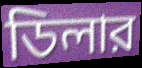
ডিলার